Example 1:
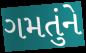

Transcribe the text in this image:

ગમતુંને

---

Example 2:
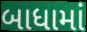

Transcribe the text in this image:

બાધામાં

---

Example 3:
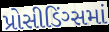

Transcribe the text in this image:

પ્રોસીડિંગ્સમાં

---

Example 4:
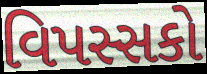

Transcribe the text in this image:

વિપસ્સકો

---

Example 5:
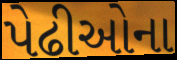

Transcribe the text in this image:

પેઢીઓના